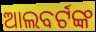
ଆଲବର୍ଟଙ୍କ